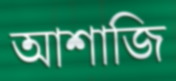
আশাজি